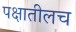
पक्षातीलच